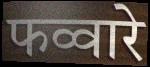
फव्‍वारे